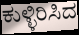
ಕುಳ್ಳಿರಿಸಿದ